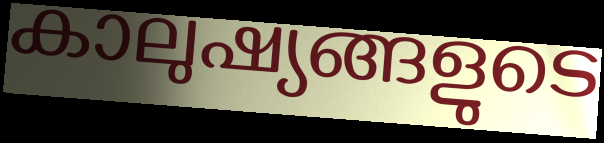
കാലുഷ്യങ്ങളുടെ